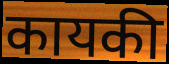
कायकी